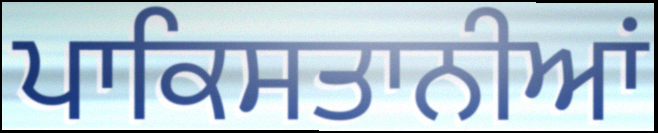
ਪਾਕਿਸਤਾਨੀਆਂ